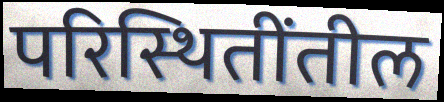
परिस्थितींतील